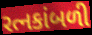
રત્નકાંબળી